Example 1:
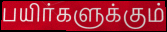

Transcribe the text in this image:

பயிர்களுக்கும்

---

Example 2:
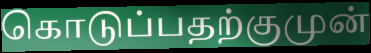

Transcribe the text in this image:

கொடுப்பதற்குமுன்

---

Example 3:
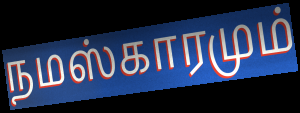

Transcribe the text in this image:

நமஸ்காரமும்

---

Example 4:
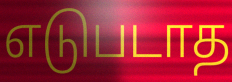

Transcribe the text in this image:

எடுபடாத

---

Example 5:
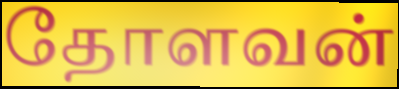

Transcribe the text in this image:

தோளவன்